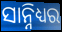
ସାନ୍ନିଧ୍ୟର